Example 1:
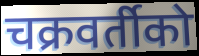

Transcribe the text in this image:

चक्रवर्तीको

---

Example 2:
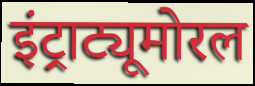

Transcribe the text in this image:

इंट्राट्यूमोरल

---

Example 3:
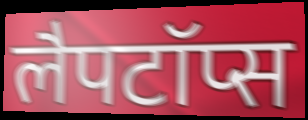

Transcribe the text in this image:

लैपटॉप्‍स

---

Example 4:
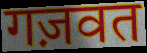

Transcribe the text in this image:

गज़वत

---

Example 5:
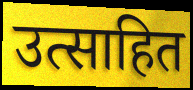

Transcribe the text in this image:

उत्साहित